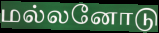
மல்லனோடு